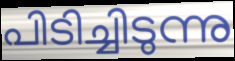
പിടിച്ചിടുന്നു